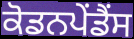
ਕੋਡਨਪੇਂਡੈਂਸ